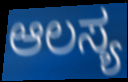
ಆಲಸ್ಯ